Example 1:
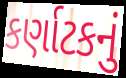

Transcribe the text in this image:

કર્ણાટકનું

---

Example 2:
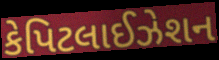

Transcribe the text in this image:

કેપિટલાઈઝેશન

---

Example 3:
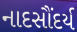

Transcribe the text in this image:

નાદસૌંદર્ય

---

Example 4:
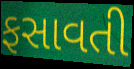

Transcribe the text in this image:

ફસાવતી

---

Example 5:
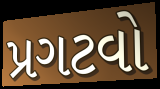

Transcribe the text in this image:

પ્રગટવો